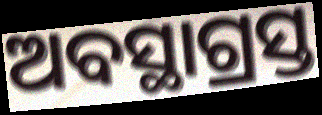
ଅବସ୍ଥାଗ୍ରସ୍ତ